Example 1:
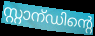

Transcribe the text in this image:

സ്റ്റാന്ഡിന്റെ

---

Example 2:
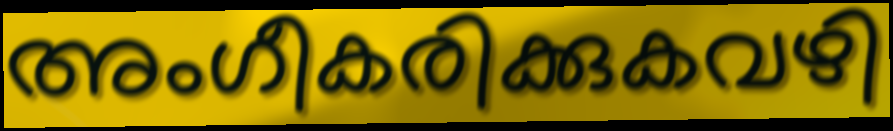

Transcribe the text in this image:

അംഗീകരിക്കുകവഴി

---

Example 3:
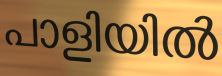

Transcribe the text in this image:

പാളിയിൽ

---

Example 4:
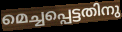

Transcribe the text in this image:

മെച്ചപ്പെട്ടതിനു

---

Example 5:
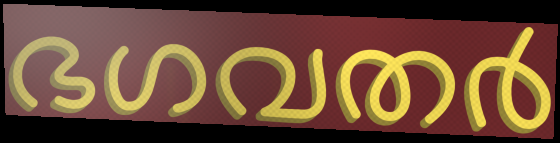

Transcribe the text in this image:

ഭഗവതർ